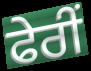
ਫੇਰੀਂ